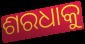
ଶରଧାକୁ